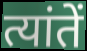
त्यांतें